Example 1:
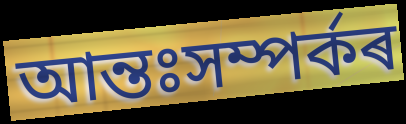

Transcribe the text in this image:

আন্তঃসম্পৰ্কৰ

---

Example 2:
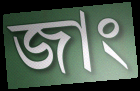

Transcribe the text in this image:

জাং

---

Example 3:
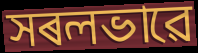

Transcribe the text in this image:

সৰলভাৱে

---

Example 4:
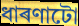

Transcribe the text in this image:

ধাৰণাটো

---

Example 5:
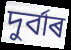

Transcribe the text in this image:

দুৰ্বাৰ